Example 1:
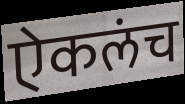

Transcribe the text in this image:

ऐकलंच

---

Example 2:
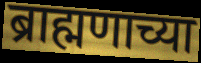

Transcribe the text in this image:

ब्राह्मणाच्या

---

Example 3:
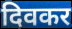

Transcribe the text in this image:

दिवकर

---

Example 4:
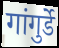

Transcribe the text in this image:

गांगुर्डे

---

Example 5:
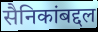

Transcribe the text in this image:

सैनिकांबद्दल